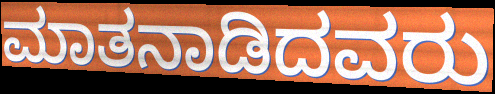
ಮಾತನಾಡಿದವರು